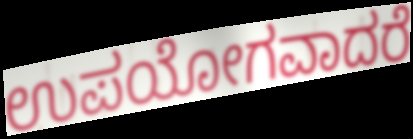
ಉಪಯೋಗವಾದರೆ